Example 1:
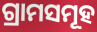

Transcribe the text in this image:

ଗ୍ରାମସମୂହ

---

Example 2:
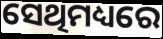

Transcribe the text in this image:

ସେଥିମଧ୍ୟରେ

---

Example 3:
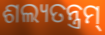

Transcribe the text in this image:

ଶଲ୍ୟତନ୍ତ୍ରମ୍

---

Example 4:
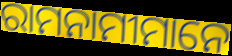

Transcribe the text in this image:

ରାମନାମୀମାନେ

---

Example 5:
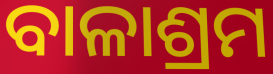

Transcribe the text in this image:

ବାଳାଶ୍ରମ